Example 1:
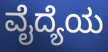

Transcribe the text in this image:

ವೈದ್ಯೆಯ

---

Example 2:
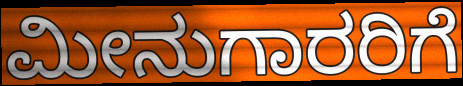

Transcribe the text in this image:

ಮೀನುಗಾರರಿಗೆ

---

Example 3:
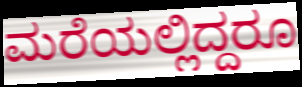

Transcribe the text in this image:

ಮರೆಯಲ್ಲಿದ್ದರೂ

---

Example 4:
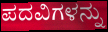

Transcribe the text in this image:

ಪದವಿಗಳನ್ನು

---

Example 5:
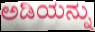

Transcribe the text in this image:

ಅಡಿಯನ್ನು